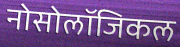
नोसोलॉजिकल